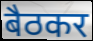
बैठकर